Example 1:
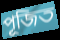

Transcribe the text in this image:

পূজিত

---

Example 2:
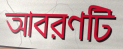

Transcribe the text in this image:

আবরণটি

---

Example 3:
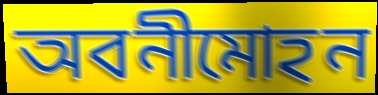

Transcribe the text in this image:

অবনীমোহন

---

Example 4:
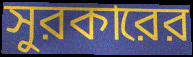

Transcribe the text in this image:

সুরকারের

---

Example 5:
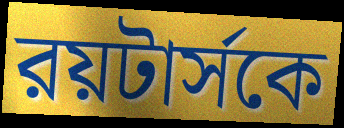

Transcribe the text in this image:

রয়টার্সকে